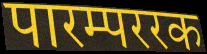
पारम्पररक